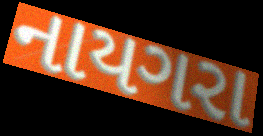
નાયગરા